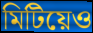
মিটিয়েও